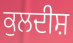
ਕੁਲਦੀਸ਼